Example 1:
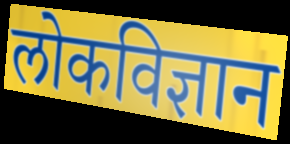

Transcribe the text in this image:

लोकविज्ञान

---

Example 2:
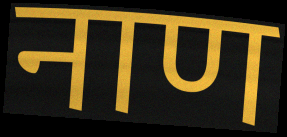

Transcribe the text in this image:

नाण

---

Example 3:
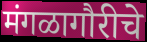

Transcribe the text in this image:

मंगळागौरीचे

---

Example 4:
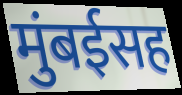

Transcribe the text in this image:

मुंबईसह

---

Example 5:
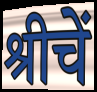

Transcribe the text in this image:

श्रीचें